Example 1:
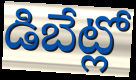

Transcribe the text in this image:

డిబేట్లో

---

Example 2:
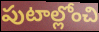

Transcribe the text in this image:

పుటాల్లోంచి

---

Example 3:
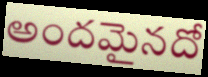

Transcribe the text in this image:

అందమైనదో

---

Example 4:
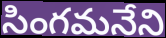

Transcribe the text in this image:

సింగమనేని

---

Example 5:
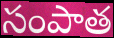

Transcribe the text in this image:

సంపాత